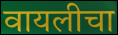
वायलीचा